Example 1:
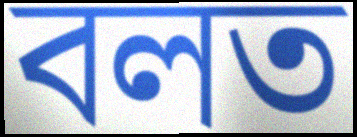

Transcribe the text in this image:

বলত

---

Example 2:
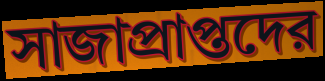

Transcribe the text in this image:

সাজাপ্রাপ্তদের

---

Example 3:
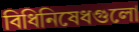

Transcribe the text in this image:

বিধিনিষেধগুলো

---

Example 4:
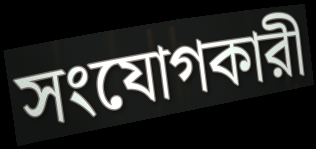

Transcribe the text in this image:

সংযোগকারী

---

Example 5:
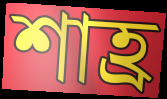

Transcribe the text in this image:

শাহ্র